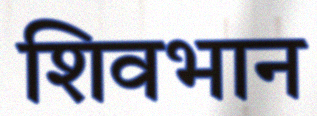
शिवभान